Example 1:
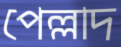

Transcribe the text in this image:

পেল্লাদ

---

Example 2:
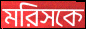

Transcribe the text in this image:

মরিসকে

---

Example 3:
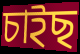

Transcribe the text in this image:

চাইছ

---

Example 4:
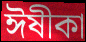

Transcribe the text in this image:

ঈষীকা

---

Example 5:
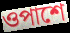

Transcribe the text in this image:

ওপাশে